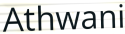
Athwani